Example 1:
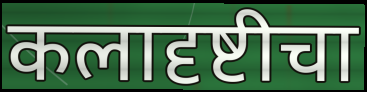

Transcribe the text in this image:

कलादृष्टीचा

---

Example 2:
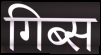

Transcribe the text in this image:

गिब्स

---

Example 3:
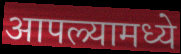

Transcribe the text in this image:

आपल्यामध्ये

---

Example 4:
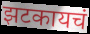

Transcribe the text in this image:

झटकायचं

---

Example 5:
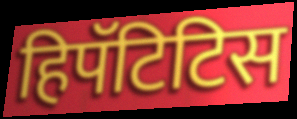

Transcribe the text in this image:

हिपॅटिटिस